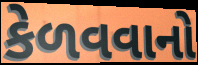
કેળવવાનો